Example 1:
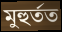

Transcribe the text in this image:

মুহুৰ্তত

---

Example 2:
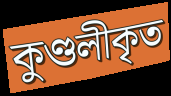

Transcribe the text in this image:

কুণ্ডলীকৃত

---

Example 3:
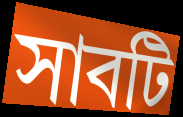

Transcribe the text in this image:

সাবটি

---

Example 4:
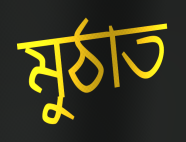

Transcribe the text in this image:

মুঠাত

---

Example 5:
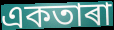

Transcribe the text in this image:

একতাৰা